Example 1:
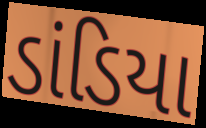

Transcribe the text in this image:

ડાંડિયા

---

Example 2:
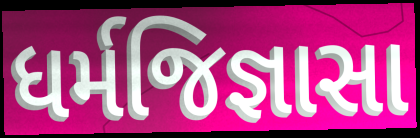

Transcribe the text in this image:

ધર્મજિજ્ઞાસા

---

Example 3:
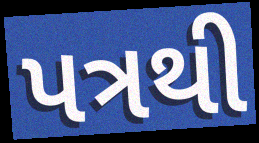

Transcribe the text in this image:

પત્રથી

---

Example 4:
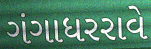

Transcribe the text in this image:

ગંગાધરરાવે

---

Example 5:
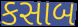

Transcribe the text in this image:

કસાબ